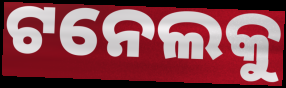
ଟନେଲକୁ